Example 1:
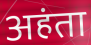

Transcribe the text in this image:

अहंता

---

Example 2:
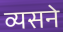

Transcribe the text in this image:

व्यसने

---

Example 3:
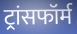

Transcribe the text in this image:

ट्रांसफॉर्म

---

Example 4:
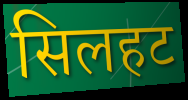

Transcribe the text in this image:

सिलहट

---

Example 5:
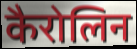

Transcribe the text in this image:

कैरोलिन